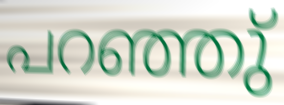
പറഞ്ഞു്